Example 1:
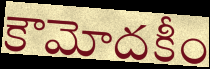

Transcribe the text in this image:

కౌమోదకీం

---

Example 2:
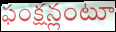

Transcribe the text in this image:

ఫంక్షన్లంటూ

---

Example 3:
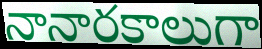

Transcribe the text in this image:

నానారకాలుగా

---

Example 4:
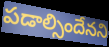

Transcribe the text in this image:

పడాల్సిందేనని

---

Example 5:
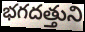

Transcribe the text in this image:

భగదత్తుని